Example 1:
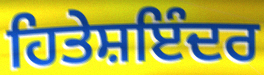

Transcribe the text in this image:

ਹਿਤੇਸ਼ਇੰਦਰ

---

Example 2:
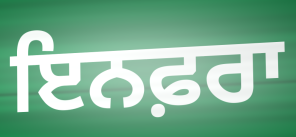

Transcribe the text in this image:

ਇਨਫ਼ਰਾ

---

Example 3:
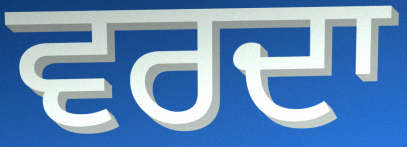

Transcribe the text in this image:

ਵਰਦਾ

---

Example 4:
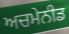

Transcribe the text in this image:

ਅਚਮੇਨੀਡ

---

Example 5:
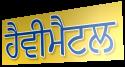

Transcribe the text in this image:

ਹੈਵੀਮੈਟਲ